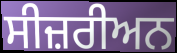
ਸੀਜ਼ਰੀਅਨ